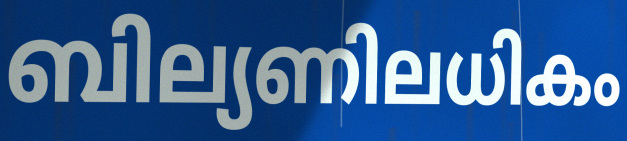
ബില്യണിലധികം